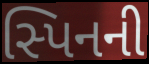
સ્પિનની